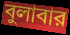
বুলাবার